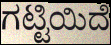
ಗಟ್ಟಿಯಿದೆ